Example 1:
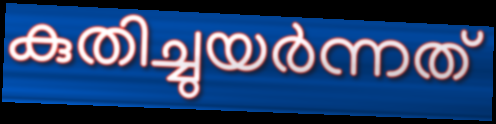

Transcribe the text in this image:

കുതിച്ചുയർന്നത്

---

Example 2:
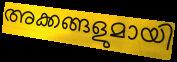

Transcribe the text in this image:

അക്കങ്ങളുമായി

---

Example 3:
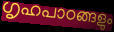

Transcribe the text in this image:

ഗൃഹപാഠങ്ങളും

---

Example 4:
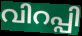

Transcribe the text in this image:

വിറപ്പി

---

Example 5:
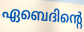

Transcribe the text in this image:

ഏബെദിന്റെ